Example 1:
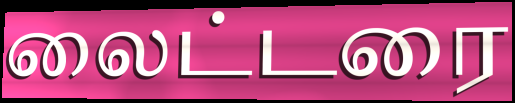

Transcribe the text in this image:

லைட்டரை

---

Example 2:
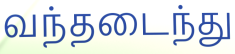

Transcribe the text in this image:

வந்தடைந்து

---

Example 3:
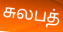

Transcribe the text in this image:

சுலபத்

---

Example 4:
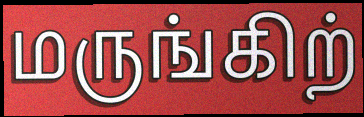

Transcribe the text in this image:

மருங்கிற்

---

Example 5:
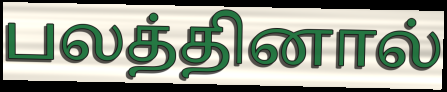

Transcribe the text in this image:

பலத்தினால்